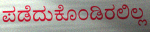
ಪಡೆದುಕೊಂಡಿರಲಿಲ್ಲ